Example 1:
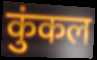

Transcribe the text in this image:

कुंकल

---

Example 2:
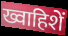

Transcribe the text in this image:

ख्वाहिशें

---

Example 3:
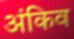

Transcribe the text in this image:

अंकिव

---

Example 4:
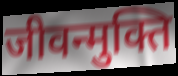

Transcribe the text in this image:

जीवन्मुक्ति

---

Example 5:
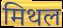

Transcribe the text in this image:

मिथल